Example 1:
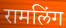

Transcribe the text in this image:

रामलिंग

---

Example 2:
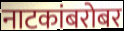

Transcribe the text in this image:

नाटकांबरोबर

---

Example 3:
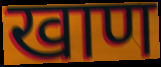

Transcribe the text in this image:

खाण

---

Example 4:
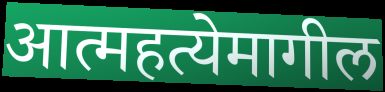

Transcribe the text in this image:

आत्महत्येमागील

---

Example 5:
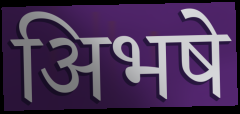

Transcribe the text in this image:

अिभषे